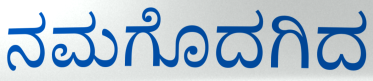
ನಮಗೊದಗಿದ